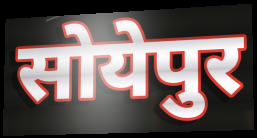
सोयेपुर